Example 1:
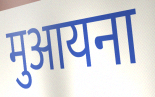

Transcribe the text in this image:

मुआयना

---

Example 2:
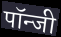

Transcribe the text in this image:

पॉन्जी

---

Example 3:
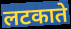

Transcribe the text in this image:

लटकाते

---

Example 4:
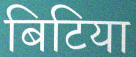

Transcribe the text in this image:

बिटिया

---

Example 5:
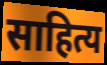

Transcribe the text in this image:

साहित्य